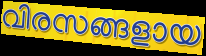
വിരസങ്ങളായ